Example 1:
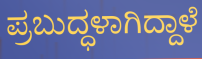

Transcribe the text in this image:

ಪ್ರಬುದ್ಧಳಾಗಿದ್ದಾಳೆ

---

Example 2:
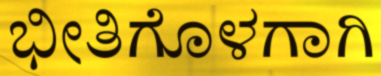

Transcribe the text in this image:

ಭೀತಿಗೊಳಗಾಗಿ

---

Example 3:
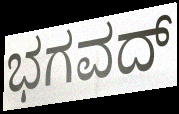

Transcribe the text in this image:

ಭಗವದ್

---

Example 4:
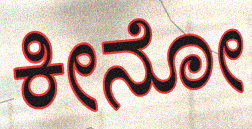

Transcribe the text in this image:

ಕೀನೋ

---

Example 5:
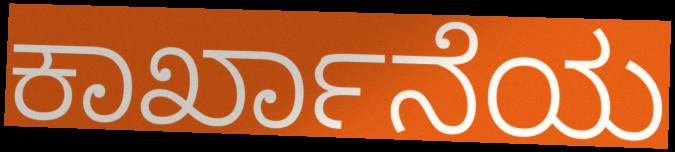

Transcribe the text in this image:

ಕಾರ್ಖಾನೆಯ